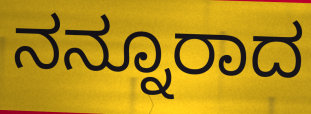
ನನ್ನೂರಾದ